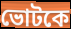
ভোটকে